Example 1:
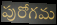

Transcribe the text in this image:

పురోగమ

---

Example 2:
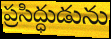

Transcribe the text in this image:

ప్రసిద్ధుడును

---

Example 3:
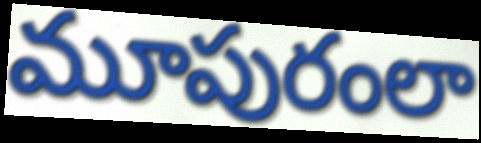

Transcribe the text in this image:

మూపురంలా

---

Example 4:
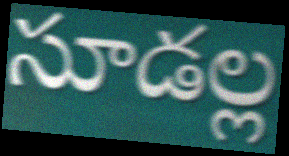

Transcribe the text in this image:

సూడల్ల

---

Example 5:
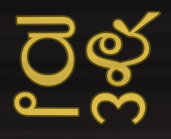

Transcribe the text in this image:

రైళ్ల